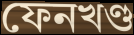
ফেনখণ্ড